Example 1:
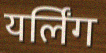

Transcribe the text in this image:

यर्लिंग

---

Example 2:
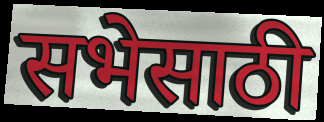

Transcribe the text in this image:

सभेसाठी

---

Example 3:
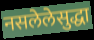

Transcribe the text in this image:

नसलेलेसुद्धा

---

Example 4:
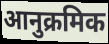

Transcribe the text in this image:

आनुक्रमिक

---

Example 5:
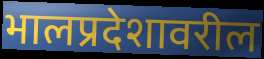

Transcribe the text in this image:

भालप्रदेशावरील